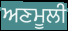
ਅਣਮੂਲੀ